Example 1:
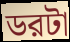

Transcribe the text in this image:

ডরটা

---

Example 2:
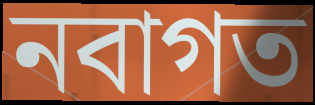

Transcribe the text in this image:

নবাগত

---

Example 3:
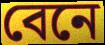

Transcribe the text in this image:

বেনে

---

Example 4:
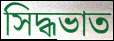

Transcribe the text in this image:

সিদ্ধভাত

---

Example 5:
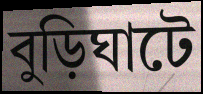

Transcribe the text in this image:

বুড়িঘাটে